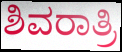
ಶಿವರಾತ್ರಿ